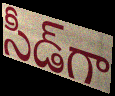
సీడ్‌గా